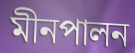
মীনপালন